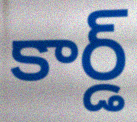
కార్డ్